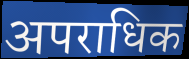
अपराधिक